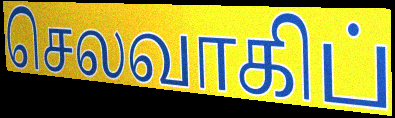
செலவாகிப்